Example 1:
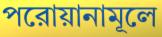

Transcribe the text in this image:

পরোয়ানামূলে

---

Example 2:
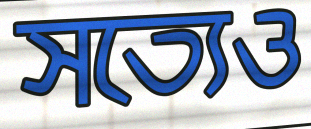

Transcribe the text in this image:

সত্যেও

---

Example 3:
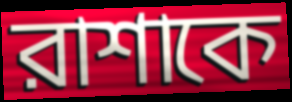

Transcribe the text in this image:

রাশাকে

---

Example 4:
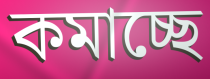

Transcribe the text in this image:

কমাচ্ছে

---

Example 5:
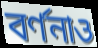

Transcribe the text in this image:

বর্ণনাও